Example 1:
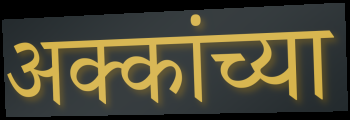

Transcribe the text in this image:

अक्कांच्या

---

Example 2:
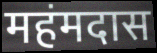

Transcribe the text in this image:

महंमदास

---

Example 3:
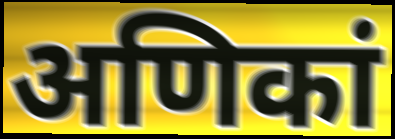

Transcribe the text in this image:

अणिकां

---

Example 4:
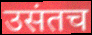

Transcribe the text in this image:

उसंतच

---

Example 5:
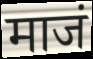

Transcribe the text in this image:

माजं